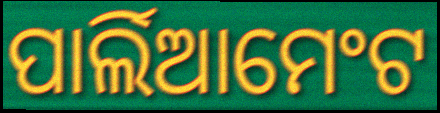
ପାର୍ଲିଆମେଂଟ